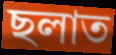
ছলাত